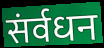
संर्वधन